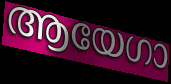
ആയേഗാ